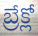
బ్రేక్లో